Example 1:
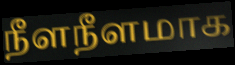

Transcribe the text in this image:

நீளநீளமாக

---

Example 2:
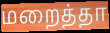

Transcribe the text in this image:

மறைத்தா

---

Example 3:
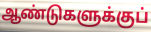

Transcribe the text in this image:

ஆண்டுகளுக்குப்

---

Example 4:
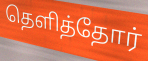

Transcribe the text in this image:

தெளித்தோர்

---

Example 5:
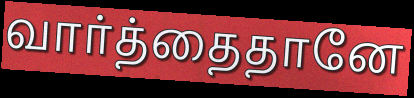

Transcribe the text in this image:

வார்த்தைதானே